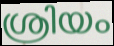
ശ്രിയം